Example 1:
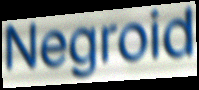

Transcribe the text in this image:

Negroid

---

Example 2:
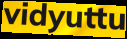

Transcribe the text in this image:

vidyuttu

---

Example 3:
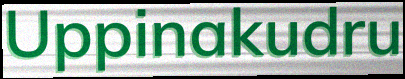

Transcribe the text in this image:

Uppinakudru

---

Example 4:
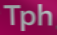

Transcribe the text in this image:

Tph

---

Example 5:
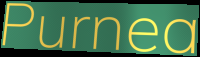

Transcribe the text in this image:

Purnea